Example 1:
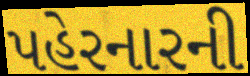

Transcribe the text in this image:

પહેરનારની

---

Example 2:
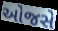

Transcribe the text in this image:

ઓજસે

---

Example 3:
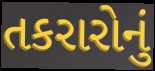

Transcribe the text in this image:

તકરારોનું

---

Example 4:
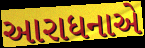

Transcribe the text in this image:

આરાધનાએ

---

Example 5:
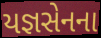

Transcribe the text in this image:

યજ્ઞસેનના